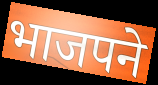
भाजपने